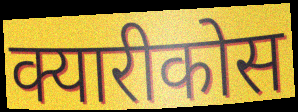
क्यारीकोस